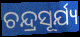
ଚନ୍ଦ୍ରସୂର୍ଯ୍ୟ